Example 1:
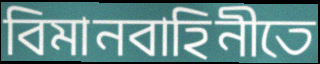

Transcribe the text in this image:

বিমানবাহিনীতে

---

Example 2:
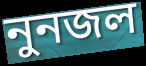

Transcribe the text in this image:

নুনজল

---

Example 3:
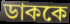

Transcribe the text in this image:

ডাককে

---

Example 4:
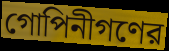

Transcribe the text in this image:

গোপিনীগণের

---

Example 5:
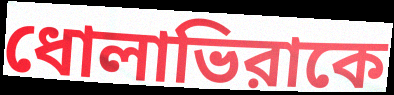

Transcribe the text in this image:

ধোলাভিরাকে